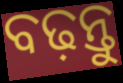
ବଢ଼ନ୍ତୁ